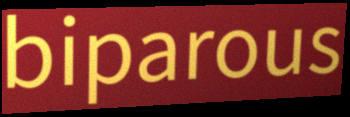
biparous